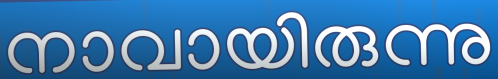
നാവായിരുന്നു